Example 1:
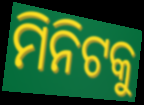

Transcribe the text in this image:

ମିନିଟକୁ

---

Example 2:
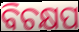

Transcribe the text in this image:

ବିଚକ୍ଷପ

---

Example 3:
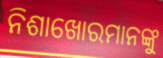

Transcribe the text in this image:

ନିଶାଖୋରମାନଙ୍କୁ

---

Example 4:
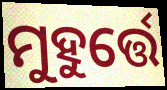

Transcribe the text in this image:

ମୁହୁର୍ତ୍ତେ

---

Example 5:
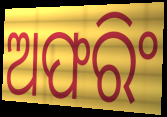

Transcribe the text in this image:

ଅଫରିଂ